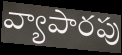
వ్యాపారపు